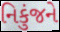
નિકુંજને